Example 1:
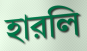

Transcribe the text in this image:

হারলি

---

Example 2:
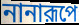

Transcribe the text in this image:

নানারূপে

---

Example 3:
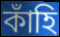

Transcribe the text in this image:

কাঁহি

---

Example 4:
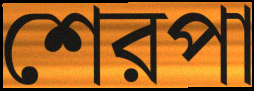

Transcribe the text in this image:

শেরপা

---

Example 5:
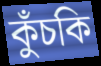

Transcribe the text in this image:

কুঁচকি